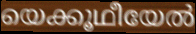
യെക്കൂഥീയേൽ